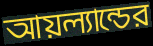
আয়ল্যান্ডের